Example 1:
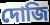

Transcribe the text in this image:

দোজি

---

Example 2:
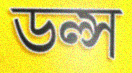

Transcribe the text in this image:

ডল্স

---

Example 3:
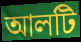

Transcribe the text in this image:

আলটি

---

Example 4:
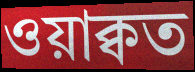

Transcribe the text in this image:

ওয়াক্বত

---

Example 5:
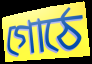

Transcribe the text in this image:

গোঠে